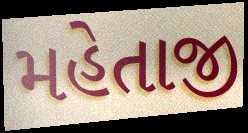
મહેતાજી